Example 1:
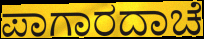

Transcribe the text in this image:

ಪಾಗಾರದಾಚೆ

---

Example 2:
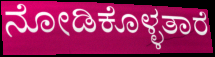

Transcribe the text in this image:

ನೋಡಿಕೊಳ್ಳತಾರೆ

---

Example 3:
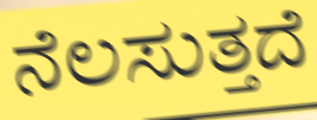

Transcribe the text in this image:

ನೆಲಸುತ್ತದೆ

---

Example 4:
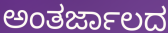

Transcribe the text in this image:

ಅಂತರ್ಜಾಲದ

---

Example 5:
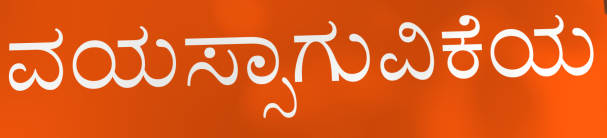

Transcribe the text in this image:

ವಯಸ್ಸಾಗುವಿಕೆಯ